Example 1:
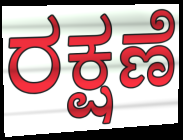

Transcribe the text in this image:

ರಕ್ಷಣೆ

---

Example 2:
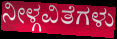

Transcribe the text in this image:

ನೀಳ್ಗವಿತೆಗಳು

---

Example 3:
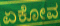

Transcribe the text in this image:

ಏಕೋವ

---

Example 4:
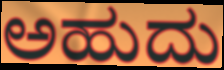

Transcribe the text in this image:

ಅಹುದು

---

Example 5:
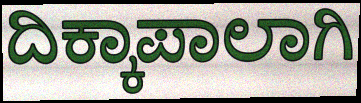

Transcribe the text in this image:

ದಿಕ್ಕಾಪಾಲಾಗಿ